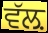
ਵੱਲ਼